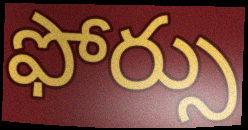
ఫోర్సు